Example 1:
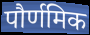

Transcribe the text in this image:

पौर्णमिक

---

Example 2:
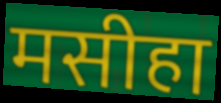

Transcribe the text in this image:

मसीहा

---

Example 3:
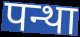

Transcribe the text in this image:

पन्‍था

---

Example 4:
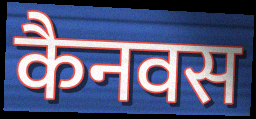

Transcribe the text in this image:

कैनवस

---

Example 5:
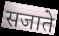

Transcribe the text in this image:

सजाते